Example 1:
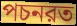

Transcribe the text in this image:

পচনরত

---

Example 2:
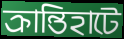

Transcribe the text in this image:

ক্রান্তিহাটে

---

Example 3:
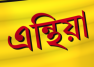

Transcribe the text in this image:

এন্থিয়া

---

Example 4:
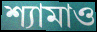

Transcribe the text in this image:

শ্যামাও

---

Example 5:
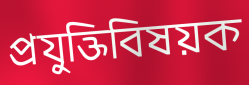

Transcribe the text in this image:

প্রযুক্তিবিষয়ক